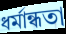
ধৰ্মান্ধতা